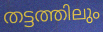
തട്ടത്തിലും